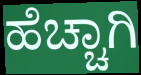
ಹೆಚ್ಚಾಗಿ